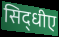
सिद्धीए